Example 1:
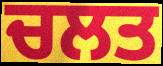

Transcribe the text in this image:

ਚਲਤ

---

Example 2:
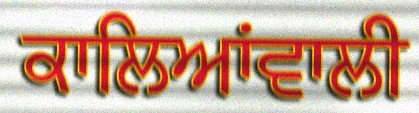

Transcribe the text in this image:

ਕਾਲਿਆਂਵਾਲੀ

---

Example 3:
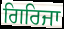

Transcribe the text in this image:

ਗਿਰਿਜਾ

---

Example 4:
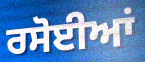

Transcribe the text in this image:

ਰਸੋਈਆਂ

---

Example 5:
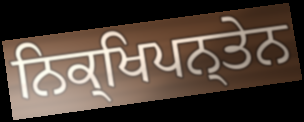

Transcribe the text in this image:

ਨਿਕ੍ਖਿਪਨ੍ਤੇਨ